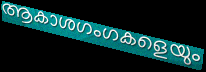
ആകാശഗംഗകളെയും